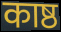
काष्ठ